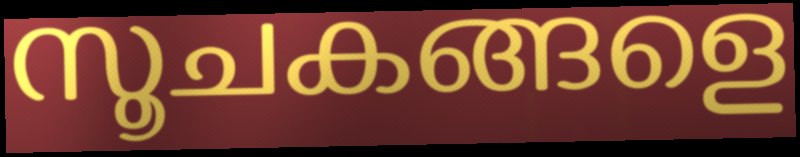
സൂചകങ്ങളെ